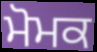
ਮੋਮਕ